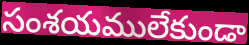
సంశయములేకుండా